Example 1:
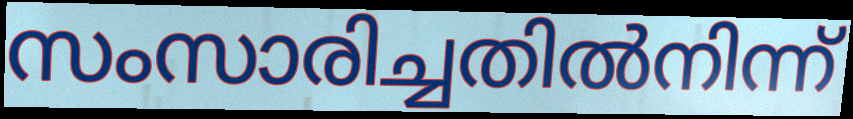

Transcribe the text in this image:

സംസാരിച്ചതിൽനിന്ന്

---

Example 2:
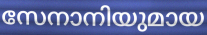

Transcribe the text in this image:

സേനാനിയുമായ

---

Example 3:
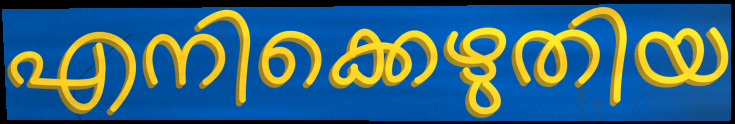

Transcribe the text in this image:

എനിക്കെഴുതിയ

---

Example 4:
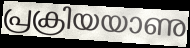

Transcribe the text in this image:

പ്രക്രിയയാണു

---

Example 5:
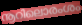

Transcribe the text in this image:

നൂറിലൊരംശം